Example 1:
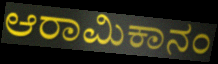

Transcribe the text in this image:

ಆರಾಮಿಕಾನಂ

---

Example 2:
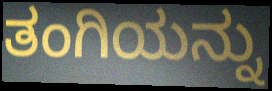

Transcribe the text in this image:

ತಂಗಿಯನ್ನು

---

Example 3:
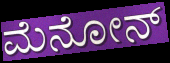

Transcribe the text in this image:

ಮೆನೋನ್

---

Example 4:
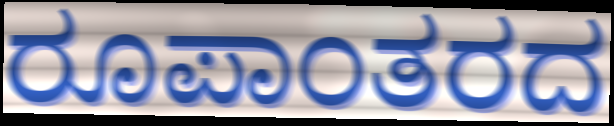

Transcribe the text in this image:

ರೂಪಾಂತರದ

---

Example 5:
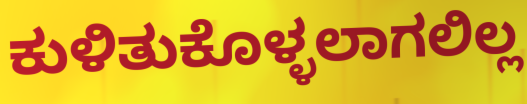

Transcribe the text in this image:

ಕುಳಿತುಕೊಳ್ಳಲಾಗಲಿಲ್ಲ